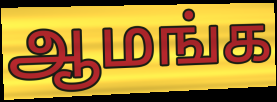
ஆமங்க